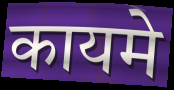
कायमे